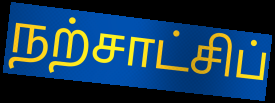
நற்சாட்சிப்